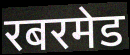
रबरमेड